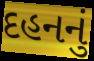
દહનનું